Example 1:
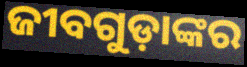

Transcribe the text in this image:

ଜୀବଗୁଡ଼ାଙ୍କର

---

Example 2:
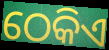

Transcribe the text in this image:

ଠେକିଏ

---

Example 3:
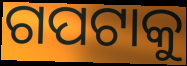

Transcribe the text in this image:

ଗପଟାକୁ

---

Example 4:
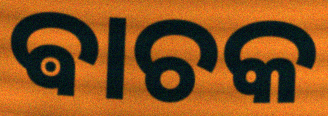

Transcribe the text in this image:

ଵାଚକ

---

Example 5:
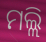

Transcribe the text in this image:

ମଲ୍ଲି